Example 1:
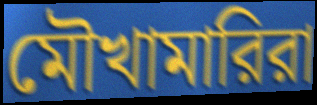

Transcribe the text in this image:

মৌখামারিরা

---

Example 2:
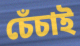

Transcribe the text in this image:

চেঁচাই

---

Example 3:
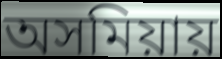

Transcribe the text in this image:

অসমিয়ায়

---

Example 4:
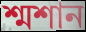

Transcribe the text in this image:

শ্মশান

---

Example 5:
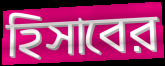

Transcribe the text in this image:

হিসাবের